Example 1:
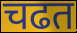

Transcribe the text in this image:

चढत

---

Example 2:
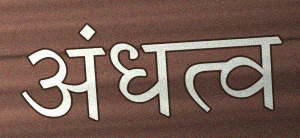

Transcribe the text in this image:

अंधत्व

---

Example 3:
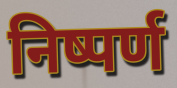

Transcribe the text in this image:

निष्पर्ण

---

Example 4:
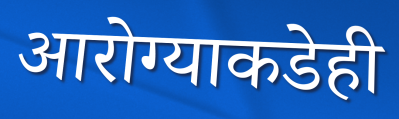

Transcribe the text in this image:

आरोग्याकडेही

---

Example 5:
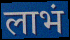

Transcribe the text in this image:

लाभं